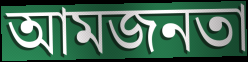
আমজনতা